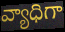
వ్యాధిగా